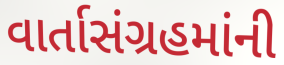
વાર્તાસંગ્રહમાંની